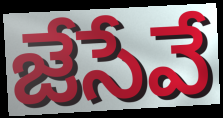
జేసేవే